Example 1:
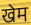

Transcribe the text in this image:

खेम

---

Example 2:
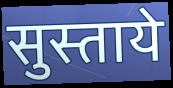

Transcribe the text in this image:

सुस्ताये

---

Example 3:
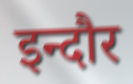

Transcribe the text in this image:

इन्दौर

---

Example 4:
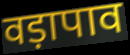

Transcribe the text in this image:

वड़ापाव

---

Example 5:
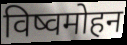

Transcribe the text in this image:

विष्वमोहन